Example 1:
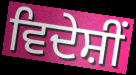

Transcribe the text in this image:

ਵਿਦੇਸ਼ੀਂ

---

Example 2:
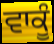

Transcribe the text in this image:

ਵਾਕੂੰ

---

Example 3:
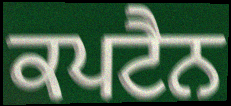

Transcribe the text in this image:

ਕਪਟੈਨ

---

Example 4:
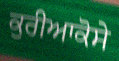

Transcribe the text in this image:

ਕੁਰੀਆਕੋਸੇ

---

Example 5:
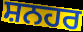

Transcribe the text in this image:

ਸ਼ਨਹਰ